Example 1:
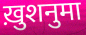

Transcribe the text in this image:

ख़ुशनुमा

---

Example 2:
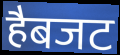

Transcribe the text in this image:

हैबजट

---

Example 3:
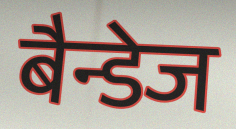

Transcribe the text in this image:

बैन्डेज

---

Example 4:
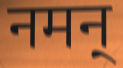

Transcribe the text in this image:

नमन्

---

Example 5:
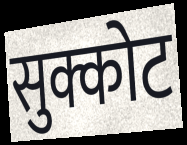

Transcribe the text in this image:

सुक्कोट